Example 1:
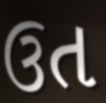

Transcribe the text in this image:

ઉત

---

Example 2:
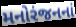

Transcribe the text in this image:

મનોરંજનનાં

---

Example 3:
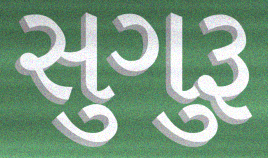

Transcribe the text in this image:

સુગુરૂ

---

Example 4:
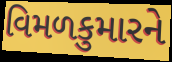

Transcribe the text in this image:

વિમળકુમારને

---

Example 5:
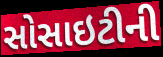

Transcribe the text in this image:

સોસાઇટીની